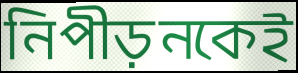
নিপীড়নকেই